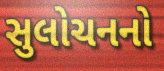
સુલોચનનો